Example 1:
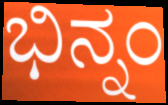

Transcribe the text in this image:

ಭಿನ್ನಂ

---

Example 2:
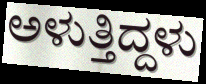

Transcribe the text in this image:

ಅಳುತ್ತಿದ್ದಳು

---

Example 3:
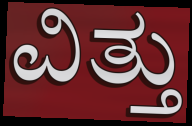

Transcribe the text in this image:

ವಿತ್ತು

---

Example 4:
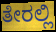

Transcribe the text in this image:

ತೇರಲ್ಲಿ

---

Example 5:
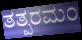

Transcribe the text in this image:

ತತ್ಪರಮಂ